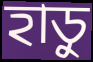
হাডু